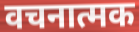
वचनात्मक